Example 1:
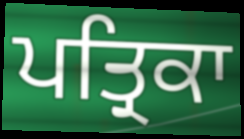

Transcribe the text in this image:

ਪਤ੍ਰਿਕਾ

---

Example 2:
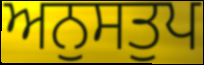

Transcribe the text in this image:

ਅਨੁਸਤੁਪ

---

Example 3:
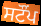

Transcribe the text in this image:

ਸਟੌਂਪ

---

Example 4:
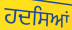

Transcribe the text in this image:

ਹਦਸਿਆਂ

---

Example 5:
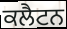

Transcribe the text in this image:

ਕਲੈਟਨ